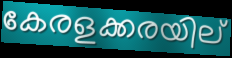
കേരളക്കരയില്